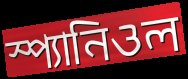
স্প্যানিওল